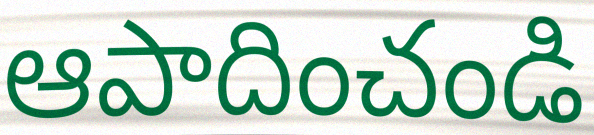
ఆపాదించండి